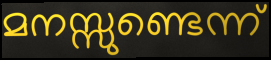
മനസ്സുണ്ടെന്ന്